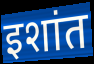
इशांत